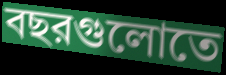
বছরগুলোতে